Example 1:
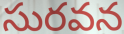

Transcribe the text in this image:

సురవన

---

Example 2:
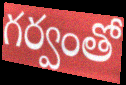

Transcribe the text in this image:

గర్వంతో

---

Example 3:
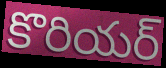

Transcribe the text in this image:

కొరియర్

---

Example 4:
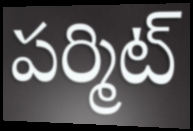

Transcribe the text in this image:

పర్మిట్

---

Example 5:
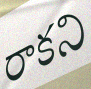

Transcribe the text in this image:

రాకని